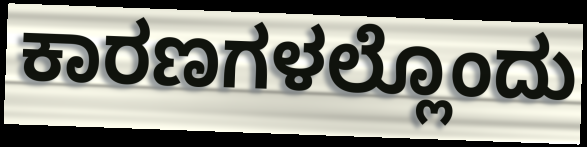
ಕಾರಣಗಳಲ್ಲೊಂದು